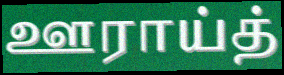
ஊராய்த்